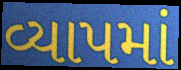
વ્યાપમાં